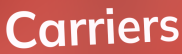
Carriers